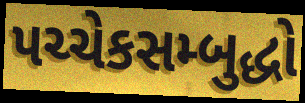
પચ્ચેકસમ્બુદ્ધો